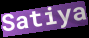
Satiya